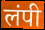
लंपी